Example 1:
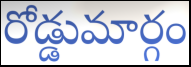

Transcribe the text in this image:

రోడ్డుమార్గం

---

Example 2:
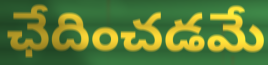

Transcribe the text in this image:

ఛేదించడమే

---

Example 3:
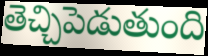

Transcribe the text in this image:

తెచ్చిపెడుతుంది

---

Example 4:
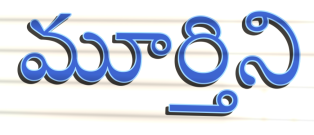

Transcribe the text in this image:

మూర్తిని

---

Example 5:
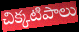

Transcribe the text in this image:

చిక్కటిపాలు